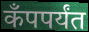
कँपपर्यंत